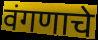
वंगणाचे